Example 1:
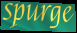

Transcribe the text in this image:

spurge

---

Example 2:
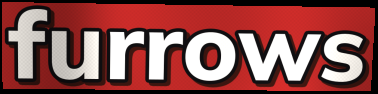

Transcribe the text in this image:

furrows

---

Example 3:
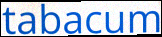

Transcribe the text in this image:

tabacum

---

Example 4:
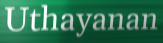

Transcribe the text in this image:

Uthayanan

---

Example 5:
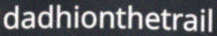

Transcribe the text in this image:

dadhionthetrail